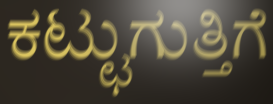
ಕಟ್ಟುಗುತ್ತಿಗೆ